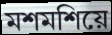
মশমশিয়ে